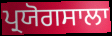
ਪ੍ਰਯੋਗਸਾਲਾ